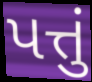
પત્તું